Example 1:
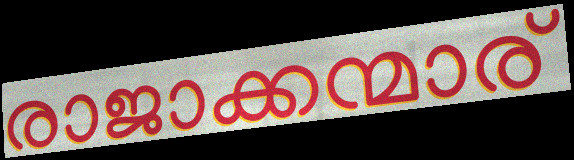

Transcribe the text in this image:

രാജാക്കന്മാര്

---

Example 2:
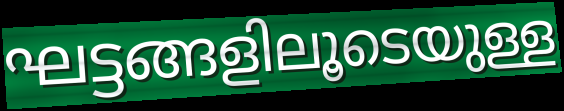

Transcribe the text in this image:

ഘട്ടങ്ങളിലൂടെയുള്ള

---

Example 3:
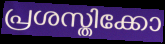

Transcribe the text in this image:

പ്രശസ്തിക്കോ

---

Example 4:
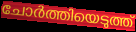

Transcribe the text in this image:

ചോർത്തിയെടുത്ത്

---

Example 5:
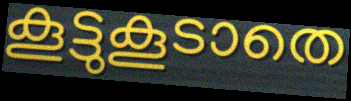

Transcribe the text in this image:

കൂട്ടുകൂടാതെ